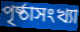
পৃষ্ঠাসংখ্যা